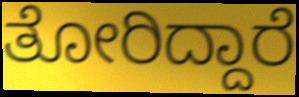
ತೋರಿದ್ದಾರೆ